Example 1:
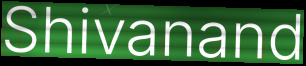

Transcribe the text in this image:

Shivanand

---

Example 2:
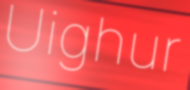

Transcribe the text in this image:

Uighur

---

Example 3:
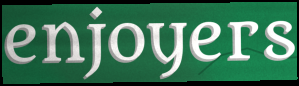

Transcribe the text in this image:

enjoyers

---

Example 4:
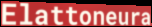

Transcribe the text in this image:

Elattoneura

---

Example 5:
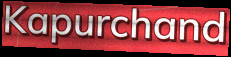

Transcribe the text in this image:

Kapurchand